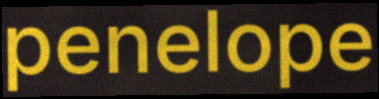
penelope